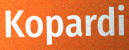
Kopardi